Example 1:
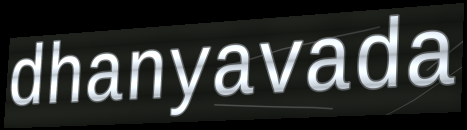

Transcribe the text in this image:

dhanyavada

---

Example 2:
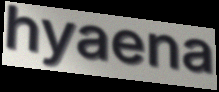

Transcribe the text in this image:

hyaena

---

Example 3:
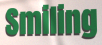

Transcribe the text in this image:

Smiling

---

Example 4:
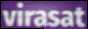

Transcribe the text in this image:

virasat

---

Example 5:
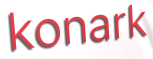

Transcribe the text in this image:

konark